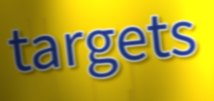
targets